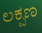
ಲಕ್ಪಣ